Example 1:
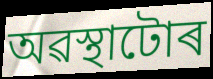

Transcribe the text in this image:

অৱস্থাটোৰ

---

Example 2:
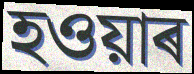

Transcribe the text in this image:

হওয়াৰ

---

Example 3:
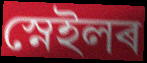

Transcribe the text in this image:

স্নেইলৰ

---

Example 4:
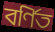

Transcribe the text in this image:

বৰ্ণিত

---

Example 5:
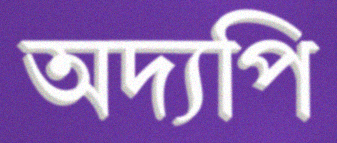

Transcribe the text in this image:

অদ্যপি